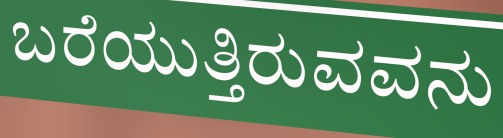
ಬರೆಯುತ್ತಿರುವವನು